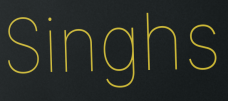
Singhs